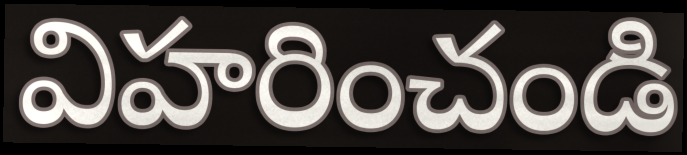
విహరించండి